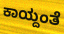
ಕಾಯ್ದಂತೆ